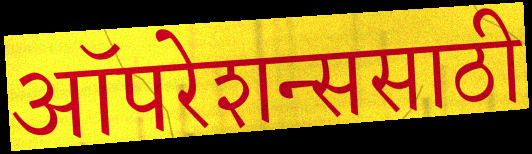
ऑपरेशन्ससाठी